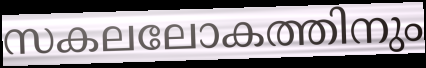
സകലലോകത്തിനും